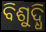
ବିଶୁଦ୍ଧି